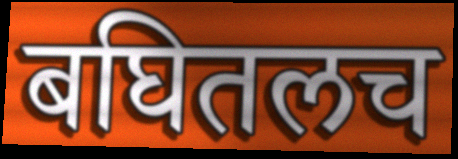
बघितलच